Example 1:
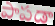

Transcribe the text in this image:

పాపడా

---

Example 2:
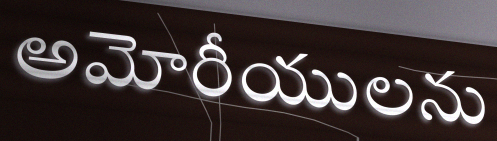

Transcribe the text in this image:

అమోరీయులను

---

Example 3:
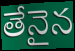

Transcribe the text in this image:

తేనైన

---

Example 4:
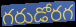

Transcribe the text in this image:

గరుడోరగ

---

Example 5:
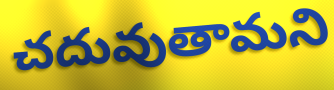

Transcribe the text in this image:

చదువుతామని